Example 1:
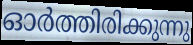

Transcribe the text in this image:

ഓർത്തിരിക്കുന്നു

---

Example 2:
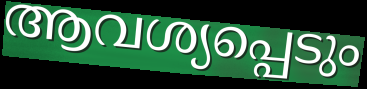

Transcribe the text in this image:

ആവശ്യപ്പെടും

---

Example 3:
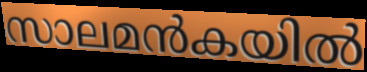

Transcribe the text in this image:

സാലമൻകയിൽ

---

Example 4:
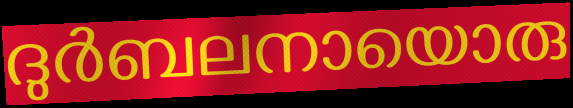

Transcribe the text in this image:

ദുർബലനായൊരു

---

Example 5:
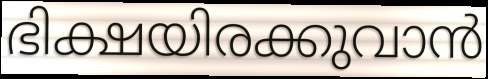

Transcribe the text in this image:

ഭിക്ഷയിരക്കുവാൻ